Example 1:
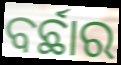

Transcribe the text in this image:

ବର୍ଛାର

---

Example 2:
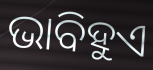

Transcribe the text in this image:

ଭାବିହୁଏ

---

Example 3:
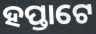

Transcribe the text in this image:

ହପ୍ତାଟେ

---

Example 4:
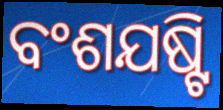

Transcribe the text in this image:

ବଂଶଯଷ୍ଟି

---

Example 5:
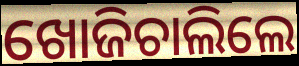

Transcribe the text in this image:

ଖୋଜିଚାଲିଲେ